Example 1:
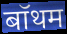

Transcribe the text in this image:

बॉथम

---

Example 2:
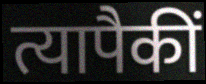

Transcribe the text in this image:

त्यापैकीं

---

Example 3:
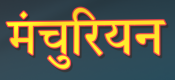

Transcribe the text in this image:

मंचुरियन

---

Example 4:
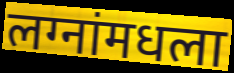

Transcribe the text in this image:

लग्नांमधला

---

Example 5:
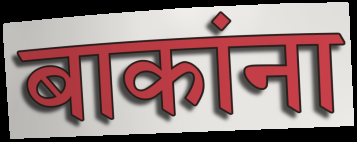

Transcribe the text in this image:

बाकांना